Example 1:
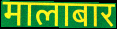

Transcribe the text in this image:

मालाबार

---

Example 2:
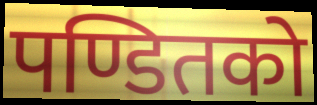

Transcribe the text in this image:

पण्डितको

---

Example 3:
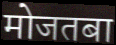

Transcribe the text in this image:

मोजतबा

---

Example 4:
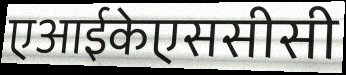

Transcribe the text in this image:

एआईकेएससीसी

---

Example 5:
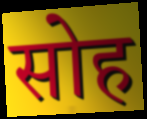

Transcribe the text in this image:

सोह